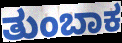
ತುಂಬಾಕ